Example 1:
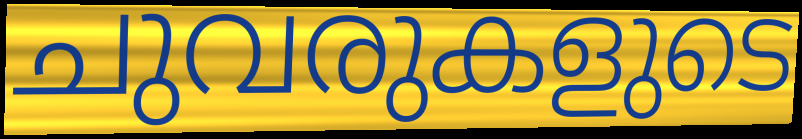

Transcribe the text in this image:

ചുവരുകളുടെ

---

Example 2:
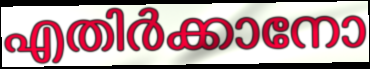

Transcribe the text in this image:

എതിർക്കാനോ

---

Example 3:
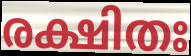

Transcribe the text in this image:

രക്ഷിതഃ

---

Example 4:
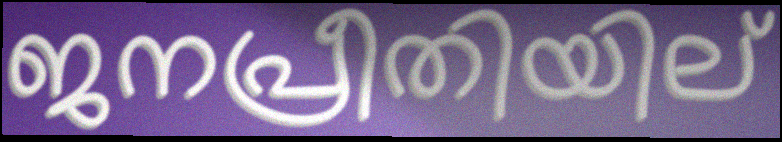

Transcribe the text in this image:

ജനപ്രീതിയില്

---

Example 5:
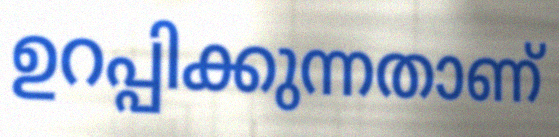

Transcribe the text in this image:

ഉറപ്പിക്കുന്നതാണ്